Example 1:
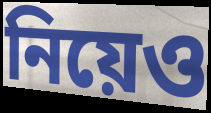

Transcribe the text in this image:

নিয়েও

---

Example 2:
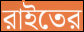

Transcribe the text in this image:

রাইতের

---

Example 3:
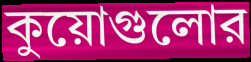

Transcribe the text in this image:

কুয়োগুলোর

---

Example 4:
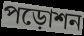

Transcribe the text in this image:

পড়োশন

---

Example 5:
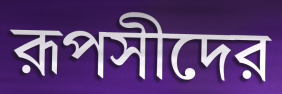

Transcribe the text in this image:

রূপসীদের